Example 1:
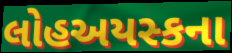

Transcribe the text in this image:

લોહઅયસ્કના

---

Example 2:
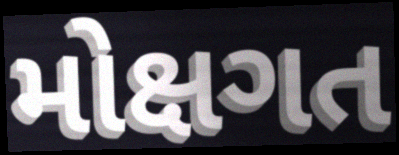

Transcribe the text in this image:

મોક્ષગત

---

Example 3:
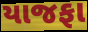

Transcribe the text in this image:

યાજફા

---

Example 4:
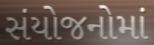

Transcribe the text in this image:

સંયોજનોમાં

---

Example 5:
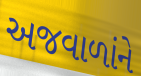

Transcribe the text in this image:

અજવાળાંને